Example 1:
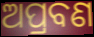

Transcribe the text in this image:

ଅପ୍ରବଣ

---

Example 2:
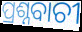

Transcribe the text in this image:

ପ୍ରଶ୍ନବାଚୀ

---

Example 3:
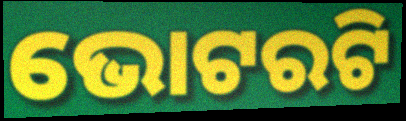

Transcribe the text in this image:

ଭୋଟରଟି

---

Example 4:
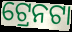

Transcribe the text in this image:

ଟ୍ରେନଟା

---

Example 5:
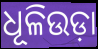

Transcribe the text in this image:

ଧୂଳିଉଡ଼ା